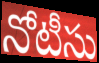
నోటీసు